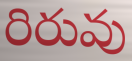
రిరువు